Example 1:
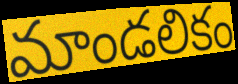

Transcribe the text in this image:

మాండలికం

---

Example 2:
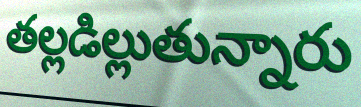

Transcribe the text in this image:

తల్లడిల్లుతున్నారు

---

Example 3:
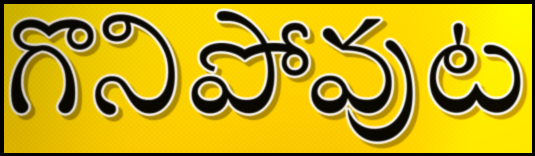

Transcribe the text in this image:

గొనిపోవుట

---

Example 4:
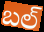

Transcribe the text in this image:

బల్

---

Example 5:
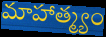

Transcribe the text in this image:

మాహాత్మ్యం